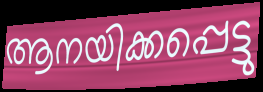
ആനയിക്കപ്പെട്ടു